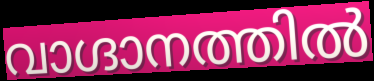
വാഗ്ദാനത്തിൽ